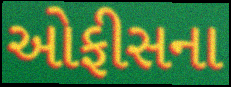
ઓફીસના